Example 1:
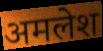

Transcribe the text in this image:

अमलेश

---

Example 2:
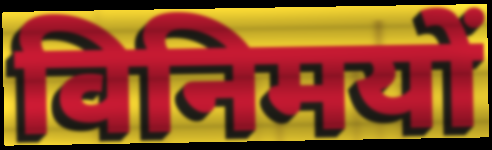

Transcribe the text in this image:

विनिमयों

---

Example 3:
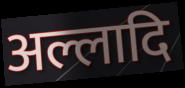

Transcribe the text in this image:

अल्लादि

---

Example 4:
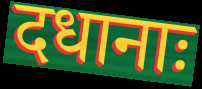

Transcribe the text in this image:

दधानाः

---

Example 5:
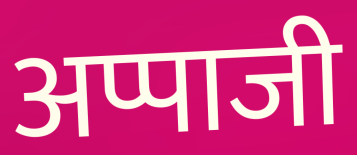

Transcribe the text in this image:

अप्पाजी